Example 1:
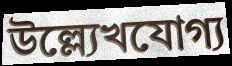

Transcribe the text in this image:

উল্ল্যেখযোগ্য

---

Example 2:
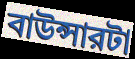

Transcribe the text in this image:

বাউন্সারটা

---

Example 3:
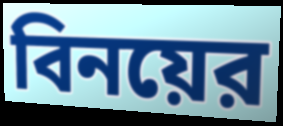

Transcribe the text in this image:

বিনয়ের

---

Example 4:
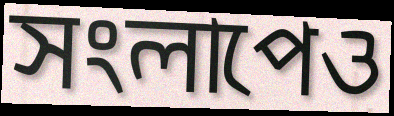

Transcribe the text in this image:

সংলাপেও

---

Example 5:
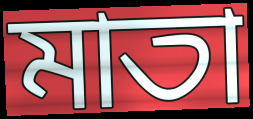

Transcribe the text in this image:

মাতা